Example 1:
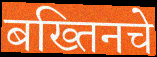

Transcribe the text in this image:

बख्तिनचे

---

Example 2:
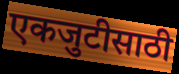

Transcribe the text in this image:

एकजुटीसाठी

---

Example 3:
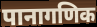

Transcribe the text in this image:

पानागणिक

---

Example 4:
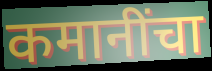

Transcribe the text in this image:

कमानींचा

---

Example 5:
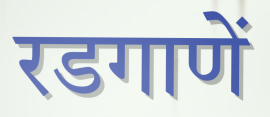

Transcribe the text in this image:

रडगाणें